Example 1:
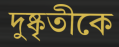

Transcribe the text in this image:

দুষ্কৃতীকে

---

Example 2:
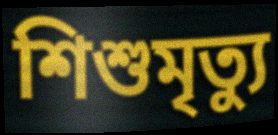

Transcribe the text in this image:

শিশুমৃত্যু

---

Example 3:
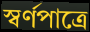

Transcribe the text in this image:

স্বর্ণপাত্রে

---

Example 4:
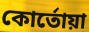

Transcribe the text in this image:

কোর্তোয়া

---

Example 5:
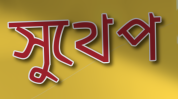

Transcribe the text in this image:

সুথেপ